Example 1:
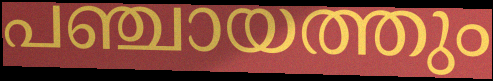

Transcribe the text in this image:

പഞ്ചായത്തും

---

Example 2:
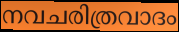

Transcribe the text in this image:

നവചരിത്രവാദം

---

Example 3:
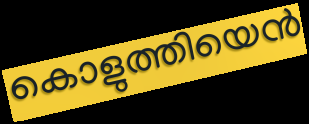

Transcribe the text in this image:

കൊളുത്തിയെൻ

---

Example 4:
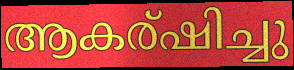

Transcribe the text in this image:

ആകര്ഷിച്ചു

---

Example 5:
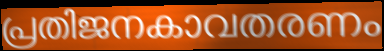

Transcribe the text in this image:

പ്രതിജനകാവതരണം